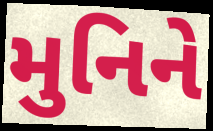
મુનિને